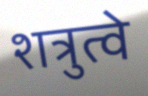
शत्रुत्वे